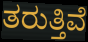
ತರುತ್ತಿವೆ